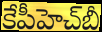
కేపీహెచ్‌బీ